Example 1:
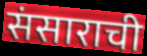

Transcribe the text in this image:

संसाराची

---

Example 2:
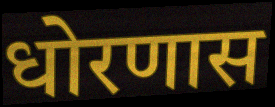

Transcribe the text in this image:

धोरणास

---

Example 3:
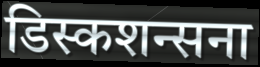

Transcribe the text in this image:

डिस्कशन्सना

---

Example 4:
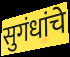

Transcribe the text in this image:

सुगंधांचे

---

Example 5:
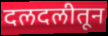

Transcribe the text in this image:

दलदलीतून